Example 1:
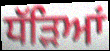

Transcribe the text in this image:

ਧੱੜਿਆਂ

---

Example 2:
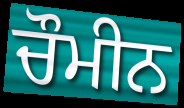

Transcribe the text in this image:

ਚੌਮੀਨ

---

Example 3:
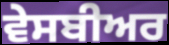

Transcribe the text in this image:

ਵੇਸਬੀਅਰ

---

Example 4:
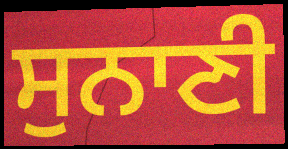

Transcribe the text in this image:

ਸੁਨਾਣੀ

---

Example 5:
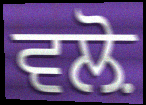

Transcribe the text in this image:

ਵਲ਼ੋ